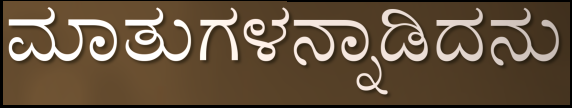
ಮಾತುಗಳನ್ನಾಡಿದನು